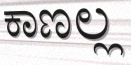
ಕಾಣಲ್ಲ